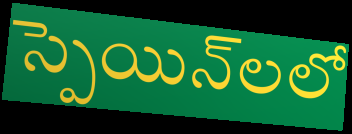
స్పెయిన్‌లలో